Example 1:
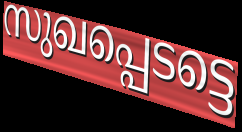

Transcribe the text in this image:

സുഖപ്പെടട്ടെ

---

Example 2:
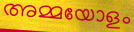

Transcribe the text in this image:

അമ്മയോളം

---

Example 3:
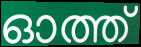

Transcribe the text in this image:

ഓത്ത്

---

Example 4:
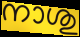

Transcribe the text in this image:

നാശു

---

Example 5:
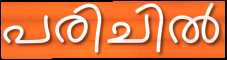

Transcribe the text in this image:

പരിചിൽ